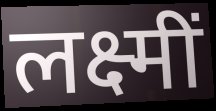
लक्ष्मीं